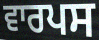
ਵਾਰਪਸ